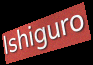
Ishiguro